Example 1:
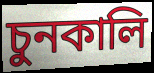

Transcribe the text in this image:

চুনকালি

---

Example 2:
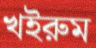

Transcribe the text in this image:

খইরুম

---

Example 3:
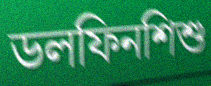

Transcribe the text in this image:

ডলফিনশিশু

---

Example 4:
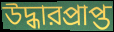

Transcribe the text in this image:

উদ্ধারপ্রাপ্ত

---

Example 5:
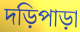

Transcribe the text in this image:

দড়িপাড়া